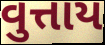
વુત્તાય